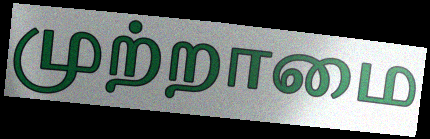
முற்றாமை